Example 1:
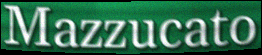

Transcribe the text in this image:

Mazzucato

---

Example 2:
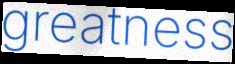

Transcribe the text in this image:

greatness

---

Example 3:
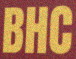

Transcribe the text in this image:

BHC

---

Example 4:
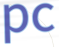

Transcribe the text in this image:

pc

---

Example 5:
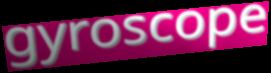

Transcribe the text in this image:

gyroscope